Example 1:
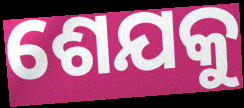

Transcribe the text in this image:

ଶେଯକୁ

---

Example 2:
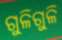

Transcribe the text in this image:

ଗୁଳିଗୁଳି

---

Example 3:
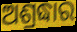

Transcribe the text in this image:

ଅଶ୍ରଦ୍ଧାର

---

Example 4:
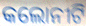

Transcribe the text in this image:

କଲୋନୀଟି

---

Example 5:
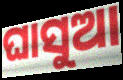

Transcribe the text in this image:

ଘାସୁଆ